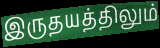
இருதயத்திலும்